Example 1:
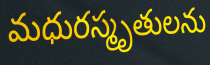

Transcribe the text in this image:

మధురస్మృతులను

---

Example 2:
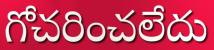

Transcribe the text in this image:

గోచరించలేదు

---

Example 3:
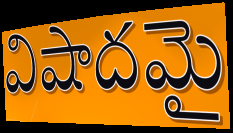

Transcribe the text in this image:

విషాదమై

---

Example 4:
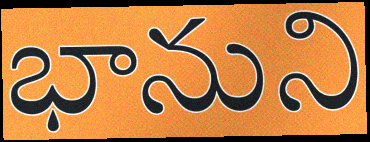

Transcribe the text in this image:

భానుని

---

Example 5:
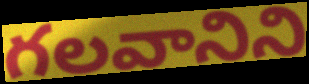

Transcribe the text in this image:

గలవానిని